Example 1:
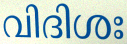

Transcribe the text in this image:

വിദിശഃ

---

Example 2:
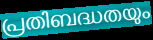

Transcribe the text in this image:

പ്രതിബദ്ധതയും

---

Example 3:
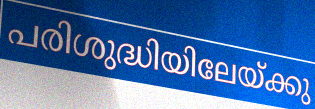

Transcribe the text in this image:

പരിശുദ്ധിയിലേയ്ക്കു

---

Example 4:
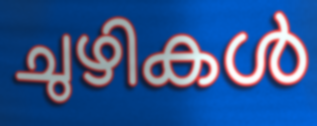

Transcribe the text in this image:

ചുഴികൾ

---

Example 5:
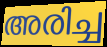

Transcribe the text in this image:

അരിച്ച